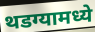
थडग्यामध्ये